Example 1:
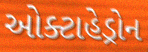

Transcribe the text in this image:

ઓક્ટાહેડ્રોન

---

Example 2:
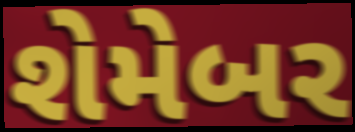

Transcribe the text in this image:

શેમેબર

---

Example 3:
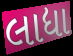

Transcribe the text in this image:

લાદ્યા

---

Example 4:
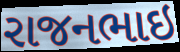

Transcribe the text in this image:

રાજનભાઇ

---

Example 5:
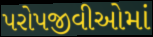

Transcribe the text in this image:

પરોપજીવીઓમાં